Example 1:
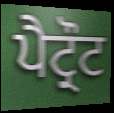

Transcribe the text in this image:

ਪੈਟ੍ਰੌਟ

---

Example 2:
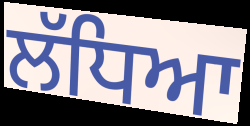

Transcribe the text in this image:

ਲੱਧਿਆ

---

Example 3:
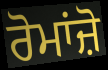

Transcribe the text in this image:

ਰੋਮਾਂਜ਼ੋ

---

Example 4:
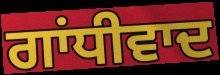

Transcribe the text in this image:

ਗਾਂਧੀਵਾਦ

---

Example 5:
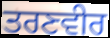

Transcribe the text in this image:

ਤਰਣਵੀਰ